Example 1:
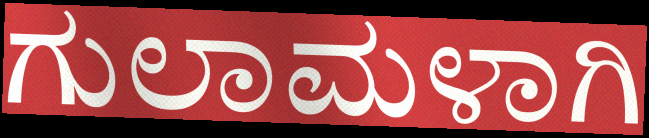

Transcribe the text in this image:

ಗುಲಾಮಳಾಗಿ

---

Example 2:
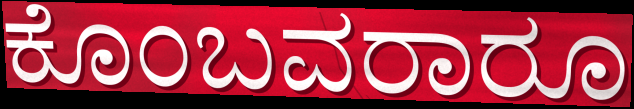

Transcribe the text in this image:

ಕೊಂಬವರಾರೂ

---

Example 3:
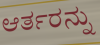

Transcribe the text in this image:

ಆರ್ತರನ್ನು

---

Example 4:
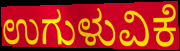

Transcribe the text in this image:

ಉಗುಳುವಿಕೆ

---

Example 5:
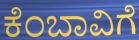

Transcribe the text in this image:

ಕೆಂಬಾವಿಗೆ